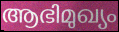
ആഭിമുഖ്യം